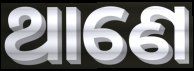
ଥାଣେ